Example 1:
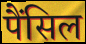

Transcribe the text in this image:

पैंसिल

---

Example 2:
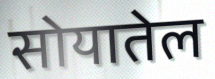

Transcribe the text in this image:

सोयातेल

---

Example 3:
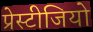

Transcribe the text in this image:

प्रेस्टीजियो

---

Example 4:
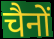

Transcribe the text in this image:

चैनों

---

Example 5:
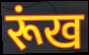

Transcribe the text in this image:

रूंख